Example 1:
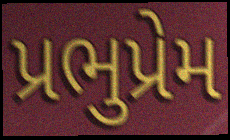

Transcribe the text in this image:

પ્રભુપ્રેમ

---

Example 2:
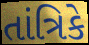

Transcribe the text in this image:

તાંત્રિકે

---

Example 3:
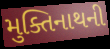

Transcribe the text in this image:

મુક્તિનાથની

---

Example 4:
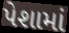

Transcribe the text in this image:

પેશામાં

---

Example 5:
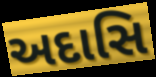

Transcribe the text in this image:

અદાસિ